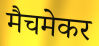
मैचमेकर